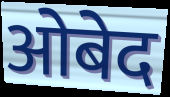
ओबेद